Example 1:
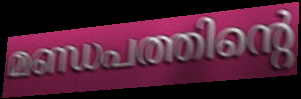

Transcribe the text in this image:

മണ്ഡപത്തിന്റെ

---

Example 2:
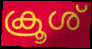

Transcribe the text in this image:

ക്രൂശ്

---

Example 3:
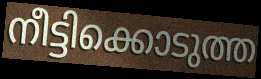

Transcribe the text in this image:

നീട്ടിക്കൊടുത്ത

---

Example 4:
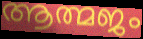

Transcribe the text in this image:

ആത്മജം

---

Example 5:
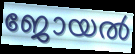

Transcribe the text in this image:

ജോയൽ